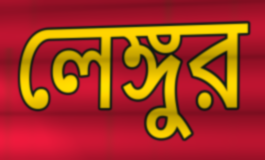
লেঙ্গুর